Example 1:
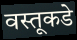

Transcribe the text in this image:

वस्तूकडे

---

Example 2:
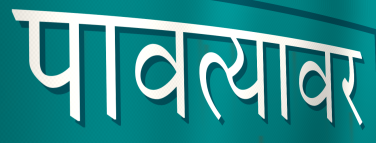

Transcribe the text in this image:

पावत्यावर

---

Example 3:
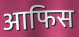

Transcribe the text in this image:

आफिस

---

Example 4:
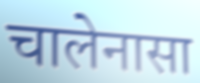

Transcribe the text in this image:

चालेनासा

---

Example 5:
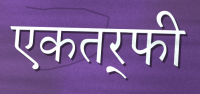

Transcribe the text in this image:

एकतर्फी